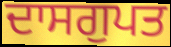
ਦਾਸਗੁਪਤ